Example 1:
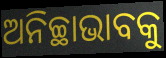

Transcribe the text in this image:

ଅନିଚ୍ଛାଭାବକୁ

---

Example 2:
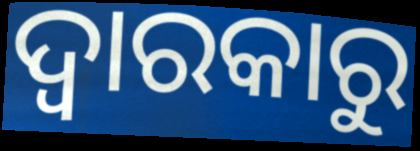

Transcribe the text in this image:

ଦ୍ଵାରକାରୁ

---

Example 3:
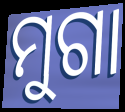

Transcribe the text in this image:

ମୁଗା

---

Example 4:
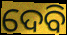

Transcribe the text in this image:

ଦେବି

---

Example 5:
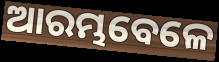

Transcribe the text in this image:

ଆରମ୍ଭବେଳେ